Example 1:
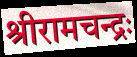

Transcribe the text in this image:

श्रीरामचन्द्रः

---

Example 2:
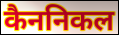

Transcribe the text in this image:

कैननिकल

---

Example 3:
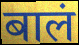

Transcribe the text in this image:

बालं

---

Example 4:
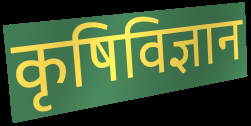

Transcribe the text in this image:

कृषिविज्ञान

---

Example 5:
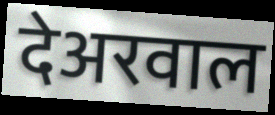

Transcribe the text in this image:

देअरवाल